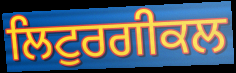
ਲਿਟੁਰਗੀਕਲ